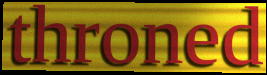
throned